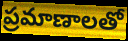
ప్రమాణాలతో